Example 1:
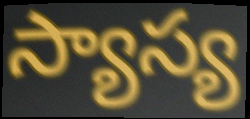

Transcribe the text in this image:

స్యాస్య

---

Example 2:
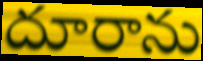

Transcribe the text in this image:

దూరాను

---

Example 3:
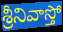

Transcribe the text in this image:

శ్రీనివాస్తో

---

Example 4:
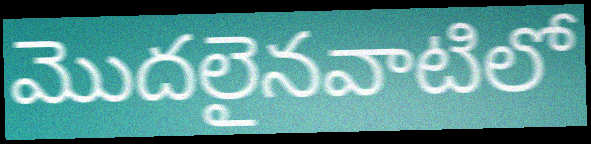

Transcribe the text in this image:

మొదలైనవాటిలో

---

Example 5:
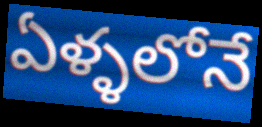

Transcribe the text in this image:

ఏళ్ళలోనే